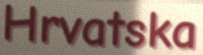
Hrvatska